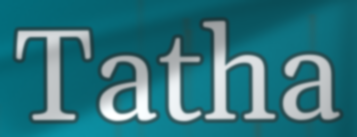
Tatha